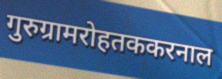
गुरुग्रामरोहतककरनाल